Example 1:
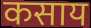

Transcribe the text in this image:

कसाय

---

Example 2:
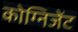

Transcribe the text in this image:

कोग्निजेंट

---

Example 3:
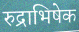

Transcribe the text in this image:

रुद्राभिषेक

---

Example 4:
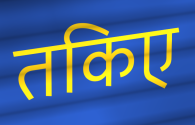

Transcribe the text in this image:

तकिए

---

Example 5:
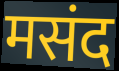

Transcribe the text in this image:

मसंद